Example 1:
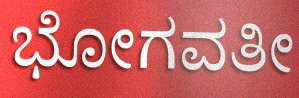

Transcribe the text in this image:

ಭೋಗವತೀ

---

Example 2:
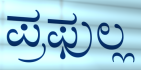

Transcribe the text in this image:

ಪ್ರಫುಲ್ಲ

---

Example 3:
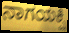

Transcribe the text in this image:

ನಾಗಯಕ್ಷಿ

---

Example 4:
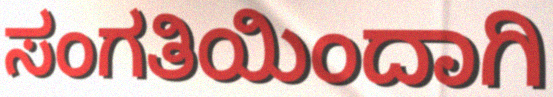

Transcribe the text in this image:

ಸಂಗತಿಯಿಂದಾಗಿ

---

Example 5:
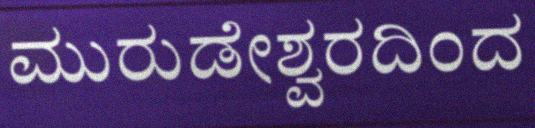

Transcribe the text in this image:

ಮುರುಡೇಶ್ವರದಿಂದ